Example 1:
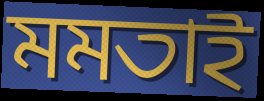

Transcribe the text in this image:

মমতাই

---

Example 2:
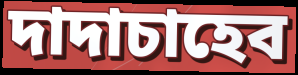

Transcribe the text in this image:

দাদাচাহেব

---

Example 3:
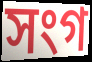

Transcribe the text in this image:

সংগ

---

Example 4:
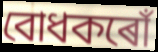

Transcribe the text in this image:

বোধকৰোঁ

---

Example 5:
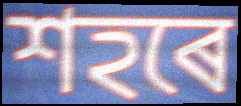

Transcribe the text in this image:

শহৰে